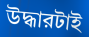
উদ্ধারটাই